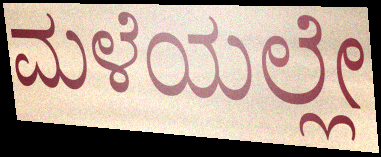
ಮಳೆಯಲ್ಲೇ